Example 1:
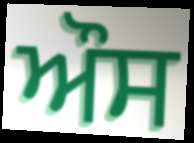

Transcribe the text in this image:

ਔਸ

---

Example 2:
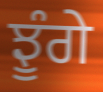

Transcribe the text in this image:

ਝੂੰਗੇ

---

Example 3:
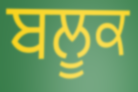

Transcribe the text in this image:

ਬਲੂਕ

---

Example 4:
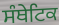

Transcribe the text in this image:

ਸੰਥੇਟਿਕ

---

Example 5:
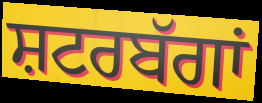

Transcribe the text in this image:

ਸ਼ਟਰਬੱਗਾਂ